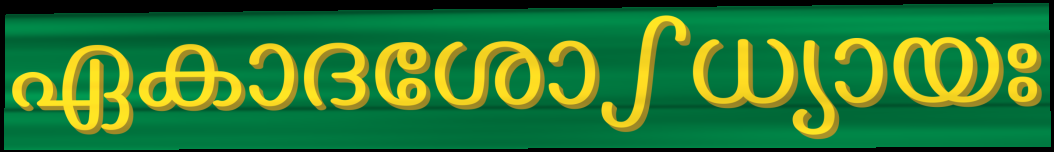
ഏകാദശോഽധ്യായഃ